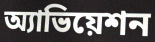
অ্যাভিয়েশন